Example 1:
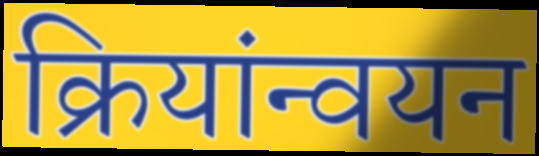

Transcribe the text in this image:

क्रियांन्वयन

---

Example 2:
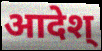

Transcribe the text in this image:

आदेश्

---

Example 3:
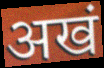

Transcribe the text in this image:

अखं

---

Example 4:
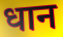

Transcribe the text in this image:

धान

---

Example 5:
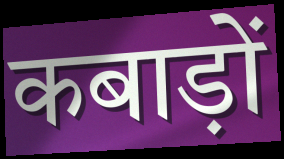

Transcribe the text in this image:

कबाड़ों